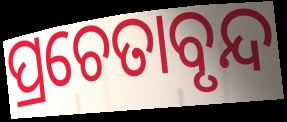
ପ୍ରଚେତାବୃନ୍ଦ